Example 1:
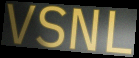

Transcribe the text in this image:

VSNL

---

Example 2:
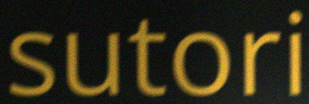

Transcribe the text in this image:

sutori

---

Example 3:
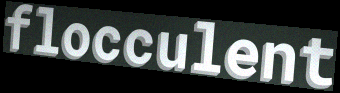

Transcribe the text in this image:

flocculent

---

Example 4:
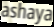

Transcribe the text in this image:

ashaya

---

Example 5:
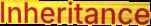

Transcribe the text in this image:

Inheritance